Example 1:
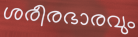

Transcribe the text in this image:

ശരീരഭാരവും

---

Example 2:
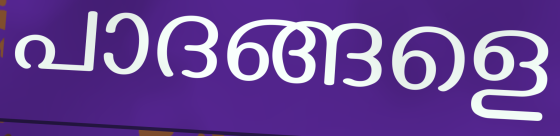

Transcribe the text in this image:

പാദങ്ങളെ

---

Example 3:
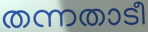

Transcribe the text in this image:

തന്നതാടീ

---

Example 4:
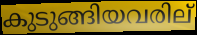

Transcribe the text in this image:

കുടുങ്ങിയവരില്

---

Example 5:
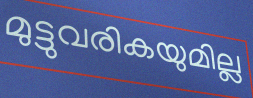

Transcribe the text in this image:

മുട്ടുവരികയുമില്ല